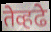
तेव्हढे